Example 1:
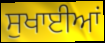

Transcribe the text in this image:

ਸੁਖਾਈਆਂ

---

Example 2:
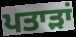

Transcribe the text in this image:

ਪਤਾੜਾਂ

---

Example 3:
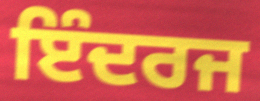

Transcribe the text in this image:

ਇੰਦਰਜ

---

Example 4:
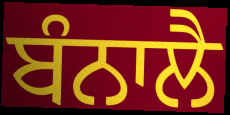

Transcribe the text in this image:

ਬੰਨਾਲੈ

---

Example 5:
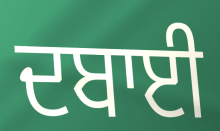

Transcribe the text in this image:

ਦਬਾਈ